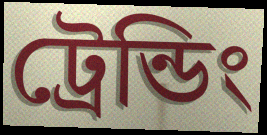
ট্রেন্ডিং